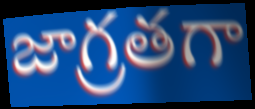
జాగ్రతగా